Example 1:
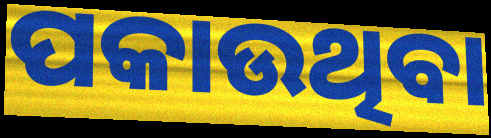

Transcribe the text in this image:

ପକାଉଥିବା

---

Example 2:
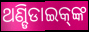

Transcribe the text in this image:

ଥଣ୍ଡିଡାଇକ୍‌ଙ୍କ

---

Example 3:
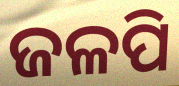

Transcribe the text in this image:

ଜଳପି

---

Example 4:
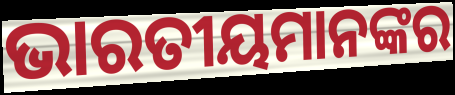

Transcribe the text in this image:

ଭାରତୀୟମାନଙ୍କର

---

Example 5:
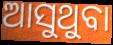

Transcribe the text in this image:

ଆସୁଥୁବା